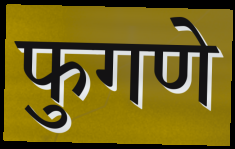
फुगणे